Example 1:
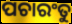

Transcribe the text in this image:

ପଚାରଂତୁ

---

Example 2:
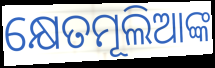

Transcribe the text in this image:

କ୍ଷେତମୂଲିଆଙ୍କ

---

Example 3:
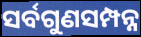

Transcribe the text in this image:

ସର୍ବଗୁଣସମ୍ପନ୍ନ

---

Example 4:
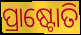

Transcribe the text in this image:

ପ୍ରାଷ୍ଟୋତି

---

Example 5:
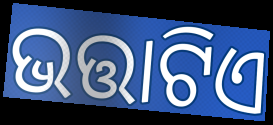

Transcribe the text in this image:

ଭତ୍ତାଟିଏ